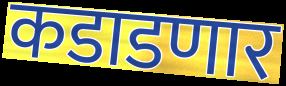
कडाडणार